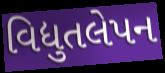
વિદ્યુતલેપન